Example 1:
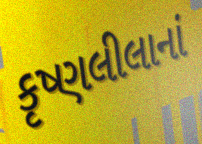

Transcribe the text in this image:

કૃષ્ણલીલાનાં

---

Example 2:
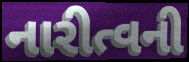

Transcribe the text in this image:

નારીત્વની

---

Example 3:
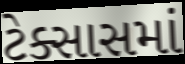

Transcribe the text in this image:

ટેક્સાસમાં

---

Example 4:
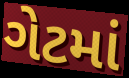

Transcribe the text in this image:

ગેટમાં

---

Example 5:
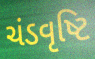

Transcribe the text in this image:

ચંડવૃષ્ટિ